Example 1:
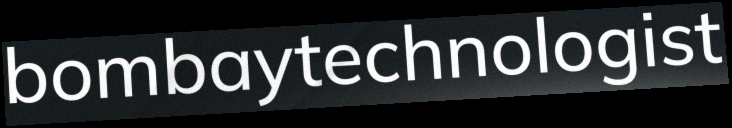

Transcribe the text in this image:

bombaytechnologist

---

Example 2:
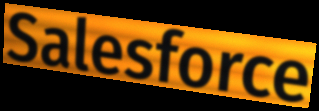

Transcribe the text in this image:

Salesforce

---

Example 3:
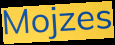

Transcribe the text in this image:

Mojzes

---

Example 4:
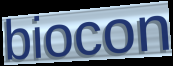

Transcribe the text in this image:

biocon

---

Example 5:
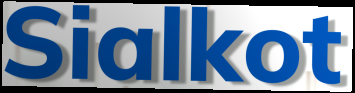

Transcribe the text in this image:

Sialkot